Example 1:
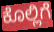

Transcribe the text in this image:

ಕೊಲ್ಲಿಗೆ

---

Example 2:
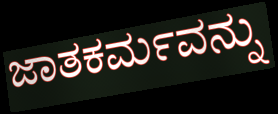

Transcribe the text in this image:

ಜಾತಕರ್ಮವನ್ನು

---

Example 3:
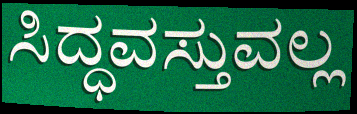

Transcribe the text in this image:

ಸಿದ್ಧವಸ್ತುವಲ್ಲ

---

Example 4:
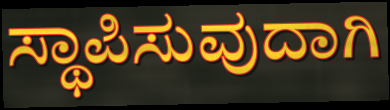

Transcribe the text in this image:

ಸ್ಥಾಪಿಸುವುದಾಗಿ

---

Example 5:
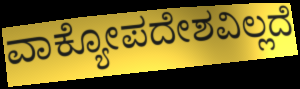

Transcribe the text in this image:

ವಾಕ್ಯೋಪದೇಶವಿಲ್ಲದೆ